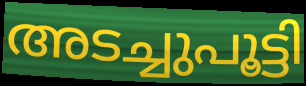
അടച്ചുപൂട്ടി